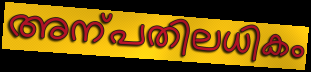
അന്പതിലധികം